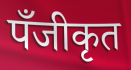
पँजीकृत